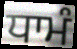
ਧਾਮੰ